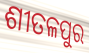
ଶୀତଳପୁର